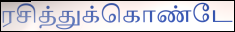
ரசித்துக்கொண்டே